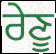
ਰੇਣੂ